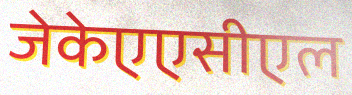
जेकेएएसीएल